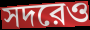
সদরেও